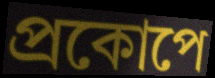
প্রকোপে